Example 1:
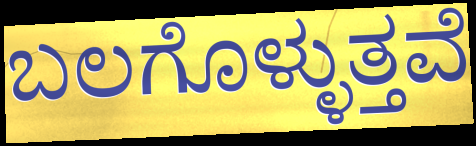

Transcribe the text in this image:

ಬಲಗೊಳ್ಳುತ್ತವೆ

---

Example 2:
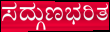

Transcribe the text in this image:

ಸದ್ಗುಣಭರಿತ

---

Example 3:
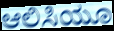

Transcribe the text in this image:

ಆಲಿಸಿಯೂ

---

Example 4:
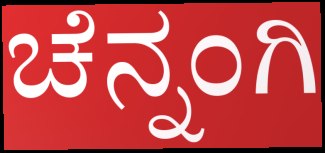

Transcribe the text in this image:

ಚೆನ್ನಂಗಿ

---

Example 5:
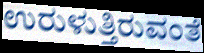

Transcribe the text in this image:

ಉರುಳುತ್ತಿರುವಂತೆ